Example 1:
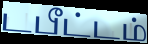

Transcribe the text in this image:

டபீட்டம்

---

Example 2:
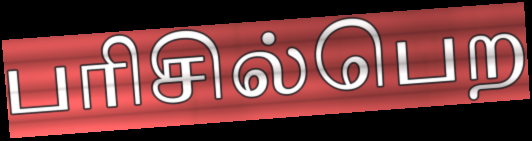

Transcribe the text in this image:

பரிசில்பெற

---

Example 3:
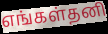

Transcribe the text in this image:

எங்கள்தனி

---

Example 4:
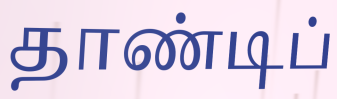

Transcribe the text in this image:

தாண்டிப்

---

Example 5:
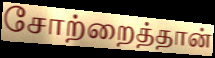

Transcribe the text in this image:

சோற்றைத்தான்